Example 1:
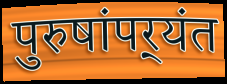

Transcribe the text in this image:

पुरुषांपर्यंत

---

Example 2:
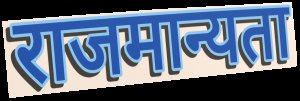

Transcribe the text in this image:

राजमान्यता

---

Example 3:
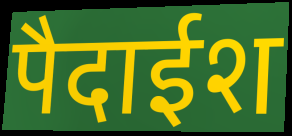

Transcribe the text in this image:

पैदाईश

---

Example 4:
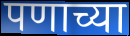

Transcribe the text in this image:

पणाच्या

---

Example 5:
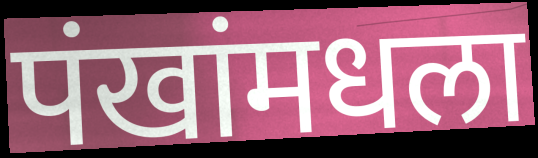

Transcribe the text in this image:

पंखांमधला